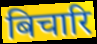
बिचारि